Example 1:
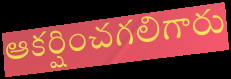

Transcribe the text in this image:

ఆకర్షించగలిగారు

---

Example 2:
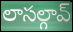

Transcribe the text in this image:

లాసల్గావ్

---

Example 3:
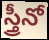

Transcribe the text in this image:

స్త్రీనో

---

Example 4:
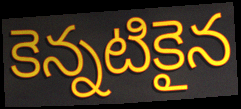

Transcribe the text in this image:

కెన్నటికైన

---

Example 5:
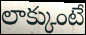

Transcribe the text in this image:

లాక్కుంటే